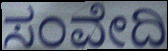
ಸಂವೇದಿ